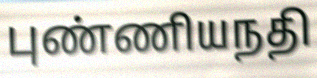
புண்ணியநதி